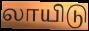
லாயிடு